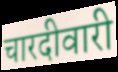
चारदीवारी